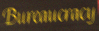
Bureaucracy